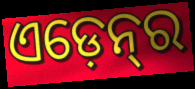
ଏଡ଼େନ୍‍ର